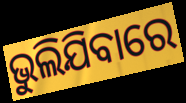
ଭୁଲିଯିବାରେ